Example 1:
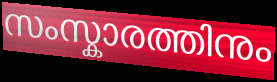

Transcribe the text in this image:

സംസ്കാരത്തിനും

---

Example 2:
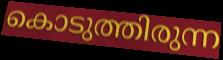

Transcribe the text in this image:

കൊടുത്തിരുന്ന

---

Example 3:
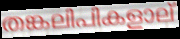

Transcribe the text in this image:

തങ്കലിപികളാല്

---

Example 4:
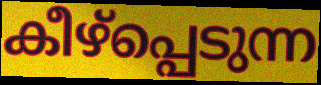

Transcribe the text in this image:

കീഴ്പ്പെടുന്ന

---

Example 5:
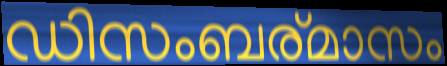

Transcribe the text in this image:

ഡിസംബര്മാസം